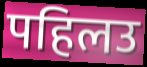
पहिलउ